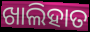
ଖାଲିହାତ